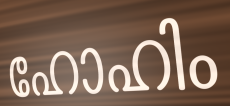
ഹോഹിം